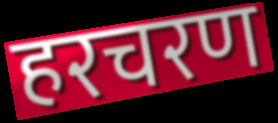
हरचरण